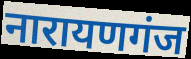
नारायणगंज